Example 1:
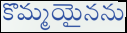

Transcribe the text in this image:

కొమ్మయైనను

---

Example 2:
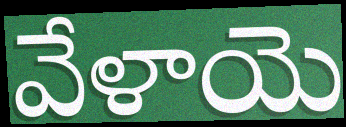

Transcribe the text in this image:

వేళాయె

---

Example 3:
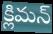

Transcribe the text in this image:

క్లిమన్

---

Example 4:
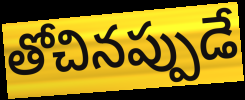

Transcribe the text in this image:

తోచినప్పుడే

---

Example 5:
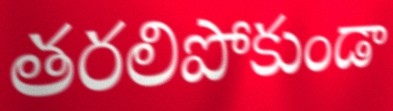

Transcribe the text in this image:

తరలిపోకుండా